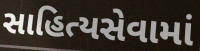
સાહિત્યસેવામાં